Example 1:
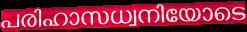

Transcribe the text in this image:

പരിഹാസധ്വനിയോടെ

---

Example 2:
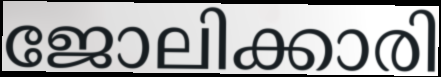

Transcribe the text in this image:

ജോലിക്കാരി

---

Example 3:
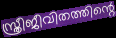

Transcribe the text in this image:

സ്ത്രീജീവിതത്തിന്റെ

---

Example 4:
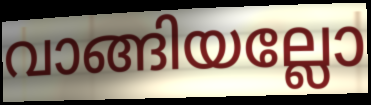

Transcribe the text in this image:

വാങ്ങിയല്ലോ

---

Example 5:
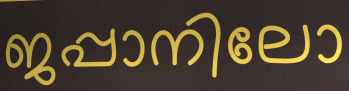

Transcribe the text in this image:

ജപ്പാനിലോ